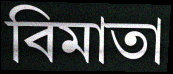
বিমাতা